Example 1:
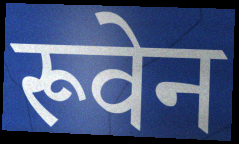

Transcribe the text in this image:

रूवेन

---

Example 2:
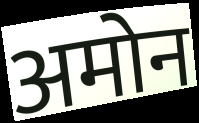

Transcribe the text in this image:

अमोन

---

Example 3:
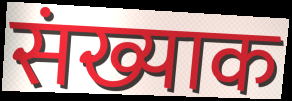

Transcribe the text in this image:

संख्याक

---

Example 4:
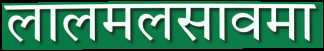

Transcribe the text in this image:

लालमलसावमा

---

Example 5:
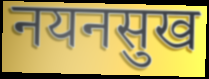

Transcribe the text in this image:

नयनसुख